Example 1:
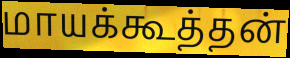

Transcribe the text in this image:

மாயக்கூத்தன்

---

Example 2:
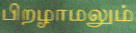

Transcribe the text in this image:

பிறழாமலும்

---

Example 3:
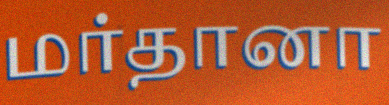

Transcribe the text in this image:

மர்தானா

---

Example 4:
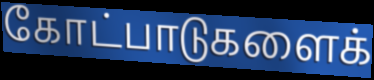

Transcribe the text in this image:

கோட்பாடுகளைக்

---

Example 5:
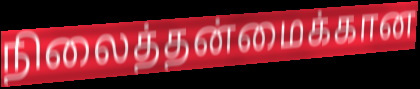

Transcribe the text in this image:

நிலைத்தன்மைக்கான